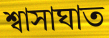
শ্বাসাঘাত